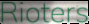
Rioters